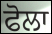
ਫੋਲਾ